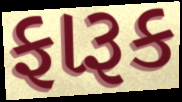
ફારૂક